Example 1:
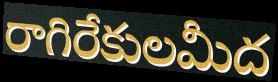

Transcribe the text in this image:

రాగిరేకులమీద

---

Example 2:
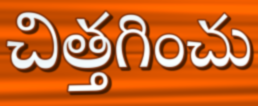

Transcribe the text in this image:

చిత్తగించు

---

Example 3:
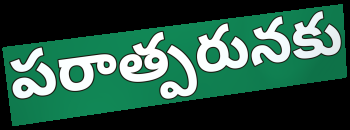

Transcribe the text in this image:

పరాత్పరునకు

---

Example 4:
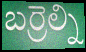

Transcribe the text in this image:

బర్రెల్ని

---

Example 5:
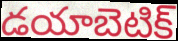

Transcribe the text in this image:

డయాబెటిక్